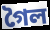
গৈল